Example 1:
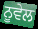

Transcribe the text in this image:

ਨੂਵੇਲ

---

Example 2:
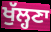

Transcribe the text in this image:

ਖੁੱਲ੍ਹਣਾ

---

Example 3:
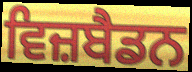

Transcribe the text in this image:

ਵਿਜ਼ਬੈਡਨ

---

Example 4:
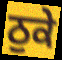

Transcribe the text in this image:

ਠੁਕੇ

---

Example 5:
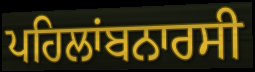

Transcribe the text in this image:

ਪਹਿਲਾਂਬਨਾਰਸੀ